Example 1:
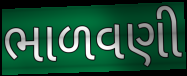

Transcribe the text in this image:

ભાળવણી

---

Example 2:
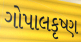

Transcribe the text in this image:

ગોપાલકૃષ્ણ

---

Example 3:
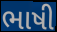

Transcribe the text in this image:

ભાષી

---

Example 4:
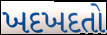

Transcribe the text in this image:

ખદખદતો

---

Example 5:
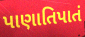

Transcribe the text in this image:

પાણાતિપાતં